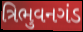
ત્રિભુવનગંડ